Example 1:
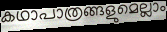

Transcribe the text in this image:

കഥാപാത്രങ്ങളുമെല്ലാം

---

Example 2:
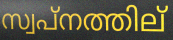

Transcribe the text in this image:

സ്വപ്നത്തില്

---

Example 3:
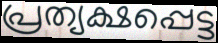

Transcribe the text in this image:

പ്രത്യക്ഷപ്പെട്ട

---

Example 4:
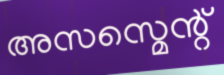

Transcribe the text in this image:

അസസ്മെന്റ്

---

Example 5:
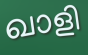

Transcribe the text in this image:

ഖാളി